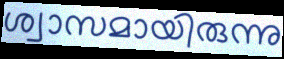
ശ്വാസമായിരുന്നു